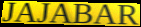
JAJABAR